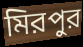
মিরপুর